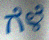
ಗೆಳೆ